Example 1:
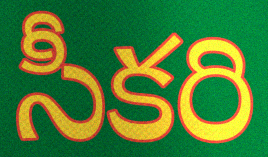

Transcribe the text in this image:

సీకరి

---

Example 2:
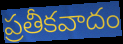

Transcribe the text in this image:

ప్రతీకవాదం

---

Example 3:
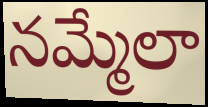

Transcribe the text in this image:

నమ్మేలా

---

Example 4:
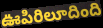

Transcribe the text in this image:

ఊపిరిలూదింది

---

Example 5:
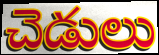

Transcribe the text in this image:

చెడులు